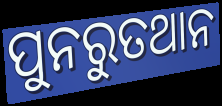
ପୁନରୁତଥାନ